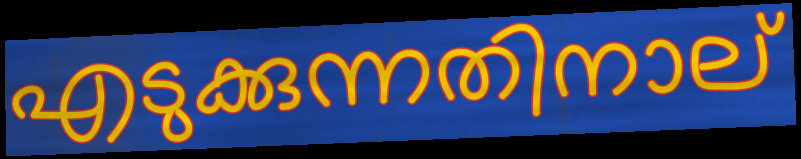
എടുക്കുന്നതിനാല്